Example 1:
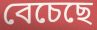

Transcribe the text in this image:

বেচেছে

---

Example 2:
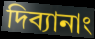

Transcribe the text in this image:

দিব্যানাং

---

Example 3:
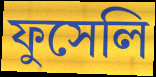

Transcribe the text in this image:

ফুসেলি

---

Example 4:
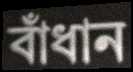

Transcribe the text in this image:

বাঁধান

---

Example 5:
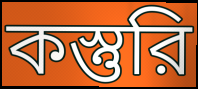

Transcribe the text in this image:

কস্তুরি